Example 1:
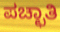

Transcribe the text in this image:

ಪಚ್ಛಾತಿ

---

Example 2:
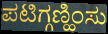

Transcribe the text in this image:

ಪಟಿಗ್ಗಣ್ಹಿಂಸು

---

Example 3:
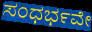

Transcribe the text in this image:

ಸಂಧರ್ಭವೇ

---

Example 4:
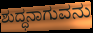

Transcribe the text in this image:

ಶುದ್ಧನಾಗುವನು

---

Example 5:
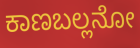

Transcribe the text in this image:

ಕಾಣಬಲ್ಲನೋ